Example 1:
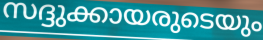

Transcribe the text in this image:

സദ്ദുക്കായരുടെയും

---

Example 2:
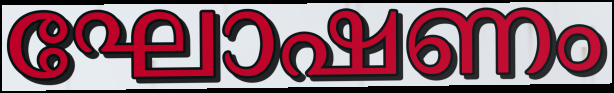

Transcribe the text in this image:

ഘോഷണം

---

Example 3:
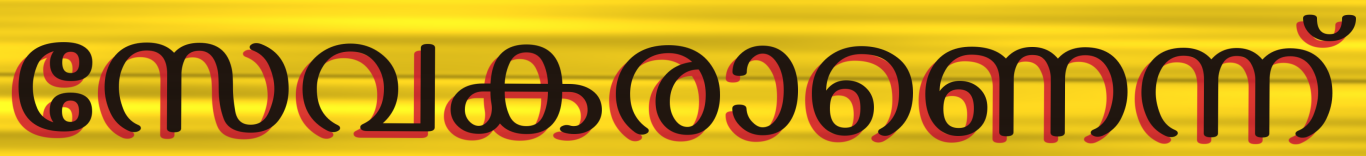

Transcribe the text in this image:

സേവകരാണെന്ന്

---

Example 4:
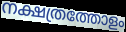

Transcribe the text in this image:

നക്ഷത്രത്തോളം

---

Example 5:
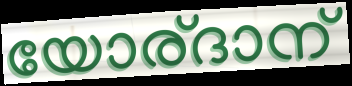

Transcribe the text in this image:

യോര്ദാന്